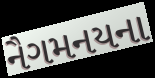
નૈગમનયના